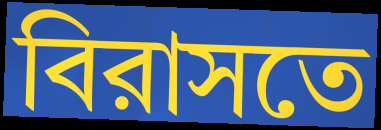
বিরাসতে